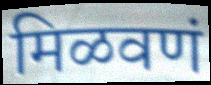
मिळवणं